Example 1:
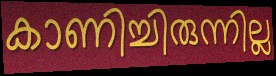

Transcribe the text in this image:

കാണിച്ചിരുന്നില്ല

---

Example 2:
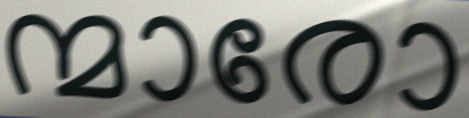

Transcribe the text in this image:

ന്മാരോ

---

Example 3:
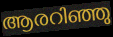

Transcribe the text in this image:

ആരറിഞ്ഞു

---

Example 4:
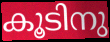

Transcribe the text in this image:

കൂടിനു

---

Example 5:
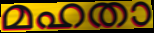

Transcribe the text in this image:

മഹതാ